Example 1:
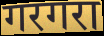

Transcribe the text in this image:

गरगरा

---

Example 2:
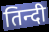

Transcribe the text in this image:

तिन्दी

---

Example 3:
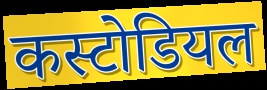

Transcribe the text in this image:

कस्टोडियल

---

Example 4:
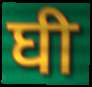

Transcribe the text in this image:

घी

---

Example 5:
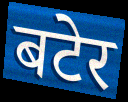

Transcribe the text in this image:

बटेर